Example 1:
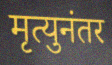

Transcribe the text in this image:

मृत्युनंतर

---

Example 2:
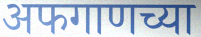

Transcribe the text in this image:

अफगाणच्या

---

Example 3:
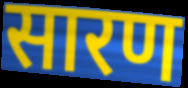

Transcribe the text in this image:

सारण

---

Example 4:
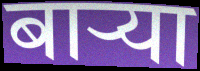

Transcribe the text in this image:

बाऱ्या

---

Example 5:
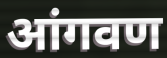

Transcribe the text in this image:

आंगवण